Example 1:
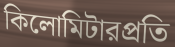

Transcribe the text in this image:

কিলোমিটারপ্রতি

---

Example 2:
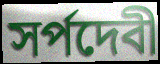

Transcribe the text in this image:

সর্পদেবী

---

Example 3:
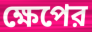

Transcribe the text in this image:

ক্ষেপের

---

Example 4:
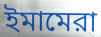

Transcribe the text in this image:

ইমামেরা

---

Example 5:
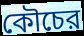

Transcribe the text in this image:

কৌচের